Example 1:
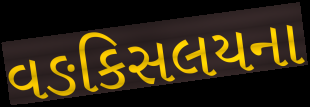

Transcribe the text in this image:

વઙકિસલયના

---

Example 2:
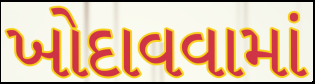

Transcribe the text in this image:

ખોદાવવામાં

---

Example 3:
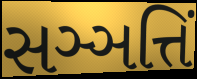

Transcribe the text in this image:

સઞ્ઞત્તિં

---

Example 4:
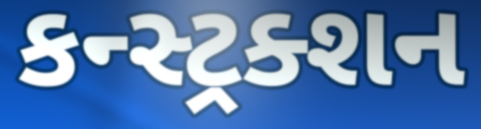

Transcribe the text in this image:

કન્સ્ટ્રક્શન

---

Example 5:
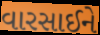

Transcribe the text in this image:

વારસાઈને